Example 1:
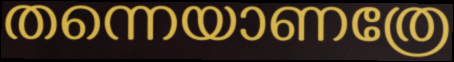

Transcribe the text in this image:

തന്നെയാണത്രേ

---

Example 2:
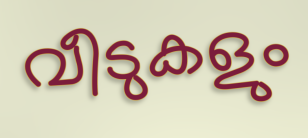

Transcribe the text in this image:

വീടുകളും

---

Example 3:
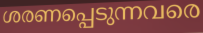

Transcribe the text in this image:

ശരണപ്പെടുന്നവരെ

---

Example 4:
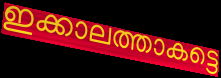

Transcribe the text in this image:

ഇക്കാലത്താകട്ടെ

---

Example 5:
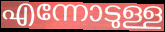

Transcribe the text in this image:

എന്നോടുള്ള